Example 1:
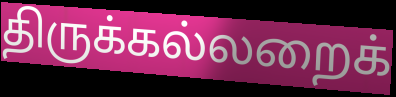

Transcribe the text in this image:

திருக்கல்லறைக்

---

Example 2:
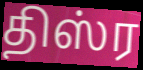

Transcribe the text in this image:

திஸ்ர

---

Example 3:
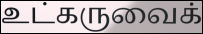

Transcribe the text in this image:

உட்கருவைக்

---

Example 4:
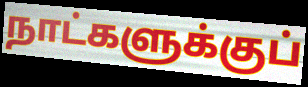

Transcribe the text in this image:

நாட்களுக்குப்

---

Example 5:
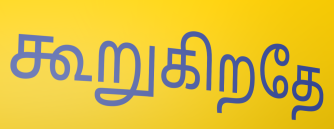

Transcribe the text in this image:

கூறுகிறதே